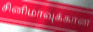
சினிமாவுக்கான